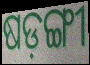
ଷଡ଼ଙ୍ଗୀ